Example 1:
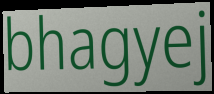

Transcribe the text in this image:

bhagyej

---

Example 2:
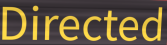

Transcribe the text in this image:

Directed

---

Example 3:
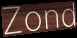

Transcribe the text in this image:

Zond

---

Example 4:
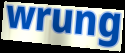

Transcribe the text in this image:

wrung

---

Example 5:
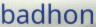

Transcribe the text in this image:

badhon